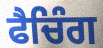
ਫੈਚਿੰਗ